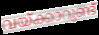
വയ്ക്കാറുണ്ട്